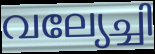
വല്യേച്ചി